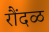
रौंदळ